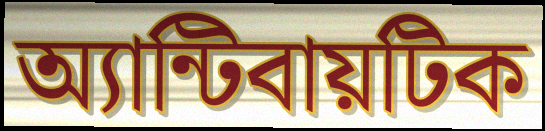
অ্যান্টিবায়টিক